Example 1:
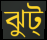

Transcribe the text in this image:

ঝুট্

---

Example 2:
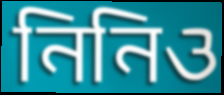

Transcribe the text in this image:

নিনিও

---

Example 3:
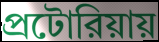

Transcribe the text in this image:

প্রটোরিয়ায়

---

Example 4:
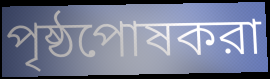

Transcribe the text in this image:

পৃষ্ঠপোষকরা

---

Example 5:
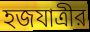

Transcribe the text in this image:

হজযাত্রীর